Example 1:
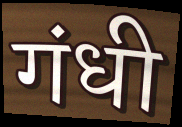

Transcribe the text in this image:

गंधी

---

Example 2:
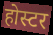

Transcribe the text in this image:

होस्टर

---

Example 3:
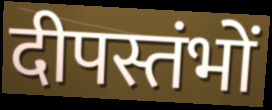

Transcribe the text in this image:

दीपस्तंभों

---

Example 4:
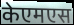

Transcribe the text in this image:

केएमएस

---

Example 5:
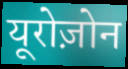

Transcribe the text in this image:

यूरोज़ोन